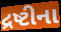
દ્રષ્ટીના